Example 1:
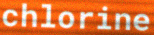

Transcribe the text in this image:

chlorine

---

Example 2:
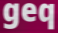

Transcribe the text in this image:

geq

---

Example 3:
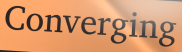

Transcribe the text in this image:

Converging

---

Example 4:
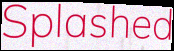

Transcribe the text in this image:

Splashed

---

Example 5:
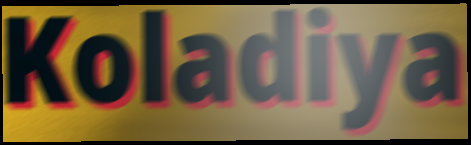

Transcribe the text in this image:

Koladiya